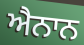
ਐਨਾਨ